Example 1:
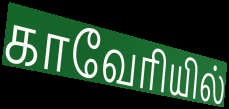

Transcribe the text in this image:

காவேரியில்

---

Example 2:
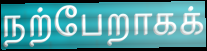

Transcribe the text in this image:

நற்பேறாகக்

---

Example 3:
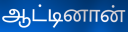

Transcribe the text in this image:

ஆட்டினான்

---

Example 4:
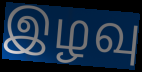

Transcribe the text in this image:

இழவு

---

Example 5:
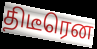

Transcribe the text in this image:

திடீரென